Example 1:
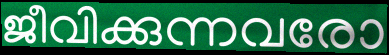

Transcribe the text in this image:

ജീവിക്കുന്നവരോ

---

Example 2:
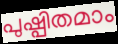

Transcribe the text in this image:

പുഷ്പിതമാം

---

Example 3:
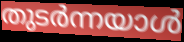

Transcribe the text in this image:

തുടർന്നയാൾ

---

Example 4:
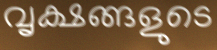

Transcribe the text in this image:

വൃക്ഷങ്ങളുടെ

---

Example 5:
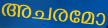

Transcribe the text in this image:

അചരമോ